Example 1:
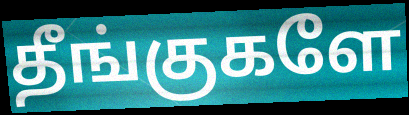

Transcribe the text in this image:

தீங்குகளே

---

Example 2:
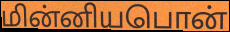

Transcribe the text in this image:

மின்னியபொன்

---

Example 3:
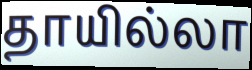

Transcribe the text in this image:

தாயில்லா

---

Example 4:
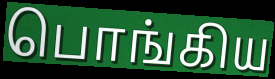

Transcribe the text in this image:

பொங்கிய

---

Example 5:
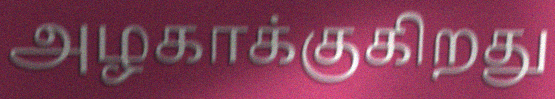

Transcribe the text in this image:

அழகாக்குகிறது